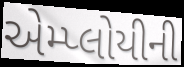
એમ્પ્લોયીની